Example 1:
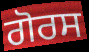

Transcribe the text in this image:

ਗੋਰਸ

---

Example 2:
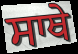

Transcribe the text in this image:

ਸਾਥੇ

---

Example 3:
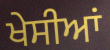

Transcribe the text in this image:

ਖੇਸੀਆਂ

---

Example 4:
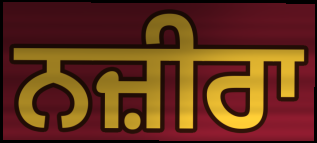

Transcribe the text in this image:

ਨਜ਼ੀਰਾ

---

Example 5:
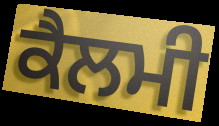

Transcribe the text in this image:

ਕੈਲਮੀ